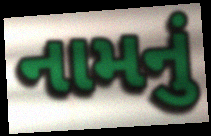
નામનું